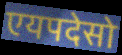
एयपदेसो